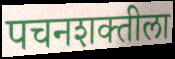
पचनशक्तीला